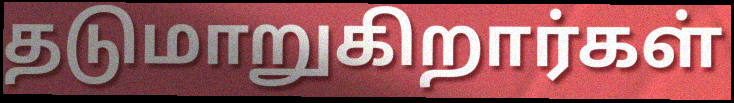
தடுமாறுகிறார்கள்